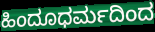
ಹಿಂದೂಧರ್ಮದಿಂದ